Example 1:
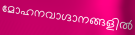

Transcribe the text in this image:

മോഹനവാഗ്ദാനങ്ങളിൽ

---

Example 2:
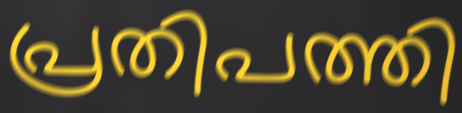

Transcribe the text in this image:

പ്രതിപത്തി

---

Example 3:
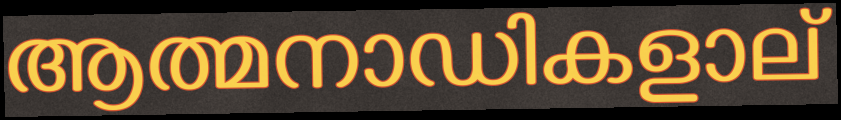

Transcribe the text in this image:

ആത്മനാഡികളാല്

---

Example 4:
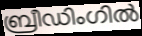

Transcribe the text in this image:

ബ്രീഡിംഗിൽ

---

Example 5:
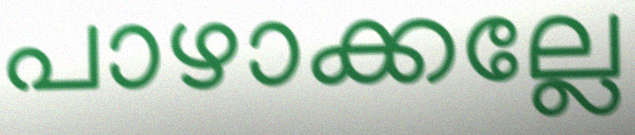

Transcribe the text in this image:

പാഴാക്കല്ലേ